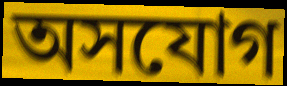
অসযোগ